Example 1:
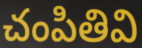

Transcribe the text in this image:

చంపితివి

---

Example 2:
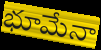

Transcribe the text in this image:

భూమేనా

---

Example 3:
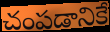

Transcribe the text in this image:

చంపడానికే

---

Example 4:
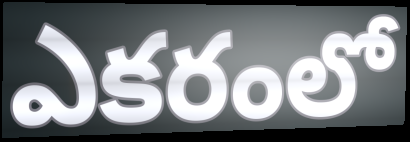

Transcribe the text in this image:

ఎకరంలో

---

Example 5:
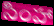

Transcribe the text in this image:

సింహా